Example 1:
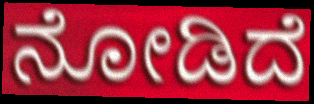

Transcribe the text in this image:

ನೋಡಿದೆ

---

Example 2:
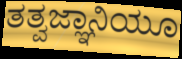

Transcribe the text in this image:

ತತ್ವಜ್ಞಾನಿಯೂ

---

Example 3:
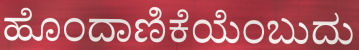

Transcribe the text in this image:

ಹೊಂದಾಣಿಕೆಯೆಂಬುದು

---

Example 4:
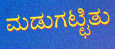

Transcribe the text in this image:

ಮಡುಗಟ್ಟಿತು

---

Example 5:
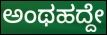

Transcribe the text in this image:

ಅಂಥಹದ್ದೇ